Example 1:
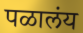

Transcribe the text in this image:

पळालंय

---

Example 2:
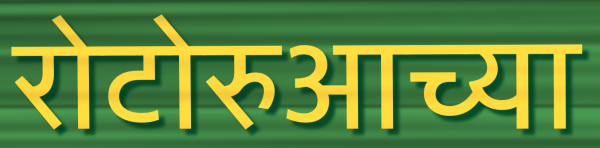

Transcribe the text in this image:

रोटोरुआच्या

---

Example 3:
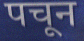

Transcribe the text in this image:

पचून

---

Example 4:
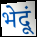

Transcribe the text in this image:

भेदूं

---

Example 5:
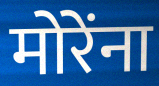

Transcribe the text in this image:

मोरेंना